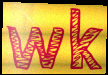
wk